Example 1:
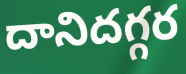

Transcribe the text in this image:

దానిదగ్గర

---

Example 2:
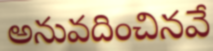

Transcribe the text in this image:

అనువదించినవే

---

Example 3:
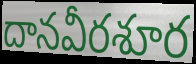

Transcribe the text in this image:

దానవీరశూర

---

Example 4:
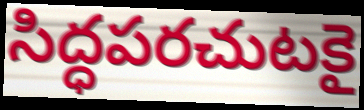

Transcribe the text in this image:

సిద్ధపరచుటకై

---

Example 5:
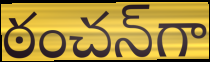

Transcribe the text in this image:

ఠంచన్‌గా